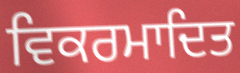
ਵਿਕਰਮਾਦਿਤ